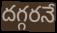
దగ్గరనే